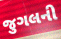
જુગલની